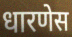
धारणेस